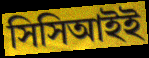
সিসিআইই